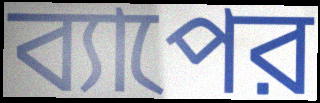
ব্যাপের